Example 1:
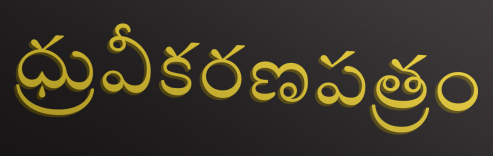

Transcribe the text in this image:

ధ్రువీకరణపత్రం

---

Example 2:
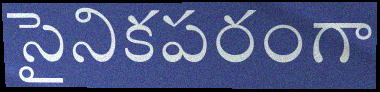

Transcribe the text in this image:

సైనికపరంగా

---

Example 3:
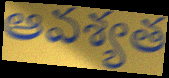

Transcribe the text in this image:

ఆవశ్యత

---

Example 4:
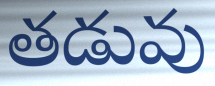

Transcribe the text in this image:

తడువు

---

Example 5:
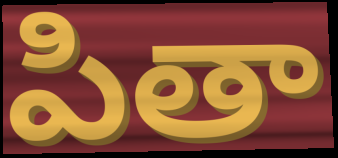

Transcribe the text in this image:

పితా